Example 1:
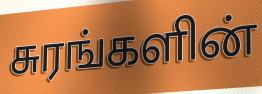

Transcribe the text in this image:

சுரங்களின்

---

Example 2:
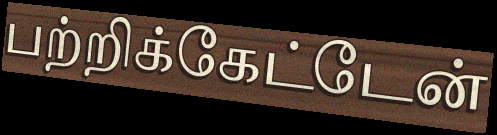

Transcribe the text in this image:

பற்றிக்கேட்டேன்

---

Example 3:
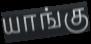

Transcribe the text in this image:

யாங்கு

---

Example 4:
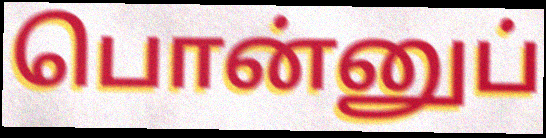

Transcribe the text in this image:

பொன்னுப்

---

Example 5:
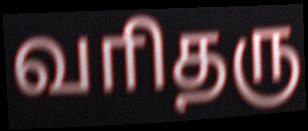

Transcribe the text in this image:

வரிதரு